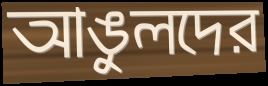
আঙুলদের